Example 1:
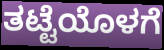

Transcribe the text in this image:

ತಟ್ಟೆಯೊಳಗೆ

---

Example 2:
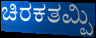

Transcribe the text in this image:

ಚಿರಕತಮ್ಪಿ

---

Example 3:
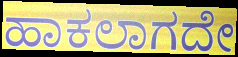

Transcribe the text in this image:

ಹಾಕಲಾಗದೇ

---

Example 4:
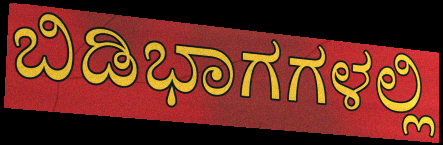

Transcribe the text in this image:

ಬಿಡಿಭಾಗಗಳಲ್ಲಿ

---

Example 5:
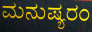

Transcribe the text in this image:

ಮನುಷ್ಯರಂ